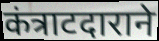
कंत्राटदाराने